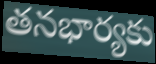
తనభార్యకు